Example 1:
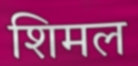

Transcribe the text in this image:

शिमल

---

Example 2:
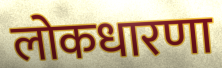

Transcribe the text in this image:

लोकधारणा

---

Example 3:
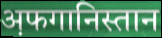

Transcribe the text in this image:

अ़फगानिस्तान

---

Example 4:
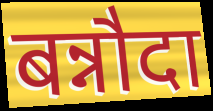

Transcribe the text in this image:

बन्नौदा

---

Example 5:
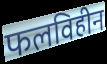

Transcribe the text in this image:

फलविहीन